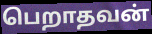
பெறாதவன்